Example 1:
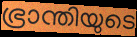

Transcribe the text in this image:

ഭ്രാന്തിയുടെ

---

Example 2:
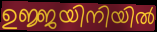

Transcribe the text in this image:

ഉജ്ജയിനിയിൽ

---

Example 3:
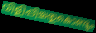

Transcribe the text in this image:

വിളിപ്പിച്ചതുകൊണ്ടും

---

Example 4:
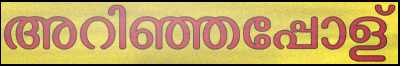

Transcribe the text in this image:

അറിഞ്ഞപ്പോള്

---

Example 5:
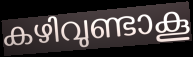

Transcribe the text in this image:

കഴിവുണ്ടാകൂ